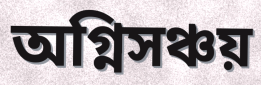
অগ্নিসঞ্চয়